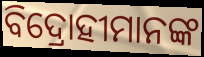
ବିଦ୍ରୋହୀମାନଙ୍କ